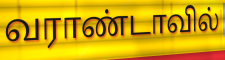
வராண்டாவில்